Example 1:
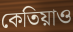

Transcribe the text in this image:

কেতিয়াও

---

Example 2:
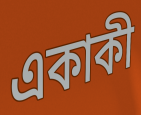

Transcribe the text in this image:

একাকী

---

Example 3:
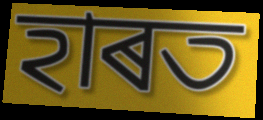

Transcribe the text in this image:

হাৰত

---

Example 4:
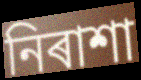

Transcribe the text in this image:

নিৰাশা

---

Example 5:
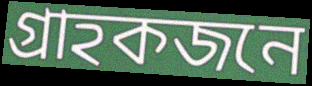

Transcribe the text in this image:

গ্ৰাহকজনে